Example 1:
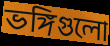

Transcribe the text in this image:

ভঙ্গিগুলো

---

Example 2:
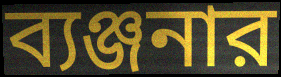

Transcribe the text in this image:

ব্যঞ্জনার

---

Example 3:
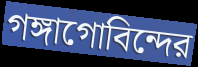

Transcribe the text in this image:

গঙ্গাগোবিন্দের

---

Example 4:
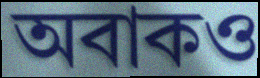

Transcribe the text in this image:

অবাকও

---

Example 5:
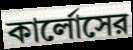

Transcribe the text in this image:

কার্লোসের